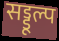
सड्डूल्प